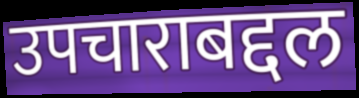
उपचाराबद्दल